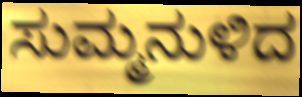
ಸುಮ್ಮನುಳಿದ